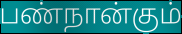
பண்நான்கும்